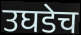
उघडेच